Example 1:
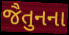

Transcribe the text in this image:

જૈતુનના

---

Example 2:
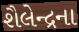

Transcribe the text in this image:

શૈલેન્દ્રના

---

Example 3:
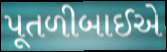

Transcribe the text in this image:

પૂતળીબાઈએ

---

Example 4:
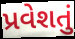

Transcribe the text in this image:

પ્રવેશતું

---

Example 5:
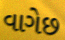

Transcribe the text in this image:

વાગેછ